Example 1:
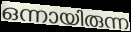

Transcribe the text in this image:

ഒന്നായിരുന്ന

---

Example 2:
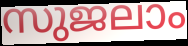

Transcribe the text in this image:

സുജലാം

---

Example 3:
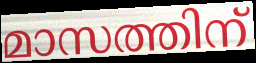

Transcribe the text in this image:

മാസത്തിന്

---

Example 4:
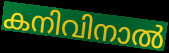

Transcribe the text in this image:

കനിവിനാൽ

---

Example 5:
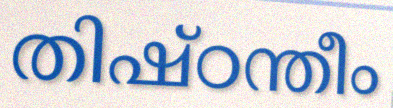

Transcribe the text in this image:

തിഷ്ഠന്തീം